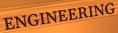
ENGINEERING